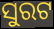
ସୁରଟ